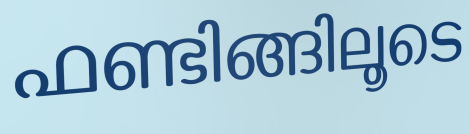
ഫണ്ടിങ്ങിലൂടെ